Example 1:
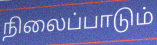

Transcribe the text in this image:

நிலைப்பாடும்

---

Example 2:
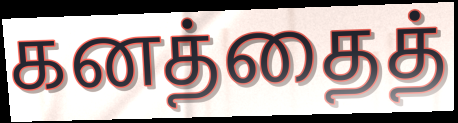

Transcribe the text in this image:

கனத்தைத்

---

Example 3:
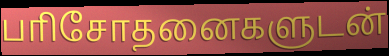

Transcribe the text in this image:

பரிசோதனைகளுடன்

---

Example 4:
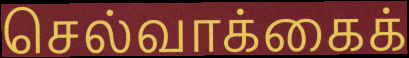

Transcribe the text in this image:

செல்வாக்கைக்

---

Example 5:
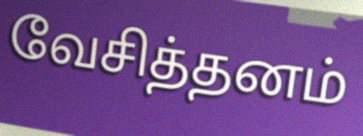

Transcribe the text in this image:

வேசித்தனம்